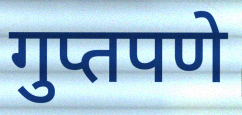
गुप्तपणे